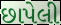
છાપેલી